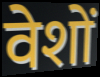
वेशों